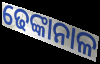
ଢେଙ୍କାନାଳ